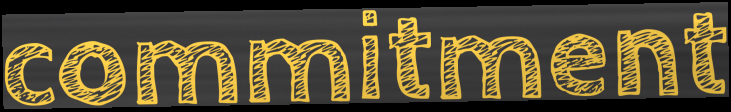
commitment